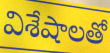
విశేషాలతో